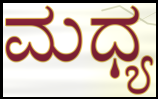
ಮಧ್ಯ